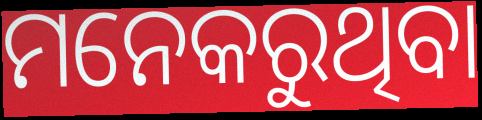
ମନେକରୁଥିବା